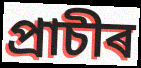
প্ৰাচীৰ